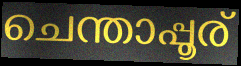
ചെന്താപ്പൂര്